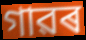
গাৱৰ